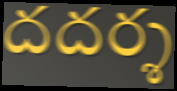
దదర్శ